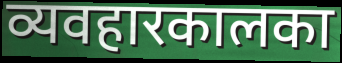
व्यवहारकालका